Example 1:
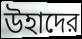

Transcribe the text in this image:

উহাদের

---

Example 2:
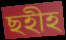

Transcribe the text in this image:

ছহীহ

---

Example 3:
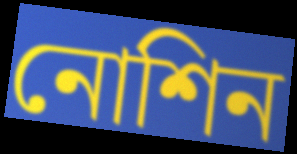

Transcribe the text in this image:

নোশিন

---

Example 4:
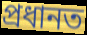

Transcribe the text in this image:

প্রধানত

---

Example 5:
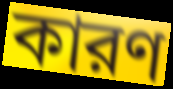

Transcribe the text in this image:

কারণ